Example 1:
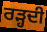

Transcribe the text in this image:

ਰੜ੍ਹਦੀ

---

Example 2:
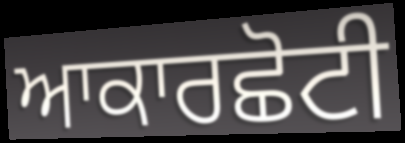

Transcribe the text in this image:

ਆਕਾਰਛੋਟੀ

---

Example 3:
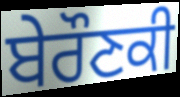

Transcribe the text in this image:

ਬੇਰੌਣਕੀ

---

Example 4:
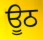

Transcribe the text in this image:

ਊਠ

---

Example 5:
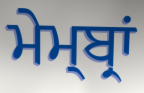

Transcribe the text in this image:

ਮੇਮ੍ਬ੍ਰਾਂ